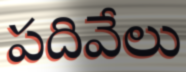
పదివేలు